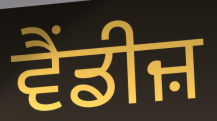
ਵੈਂਡੀਜ਼